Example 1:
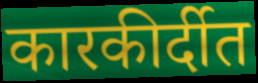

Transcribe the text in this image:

कारकीर्दीत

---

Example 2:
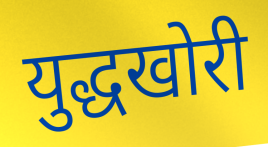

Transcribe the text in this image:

युद्धखोरी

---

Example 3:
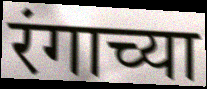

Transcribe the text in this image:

रंगाच्या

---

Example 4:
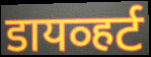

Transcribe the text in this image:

डायव्हर्ट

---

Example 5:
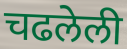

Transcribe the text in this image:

चढलेली